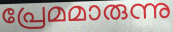
പ്രേമമാരുന്നു